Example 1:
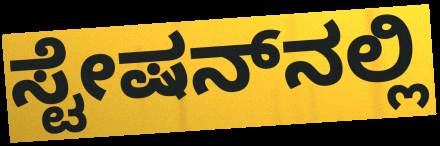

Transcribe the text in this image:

ಸ್ಟೇಷನ್‌ನಲ್ಲಿ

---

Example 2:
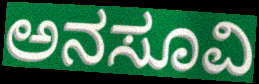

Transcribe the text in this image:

ಅನಸೂವಿ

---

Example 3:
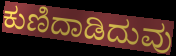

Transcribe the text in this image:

ಕುಣಿದಾಡಿದುವು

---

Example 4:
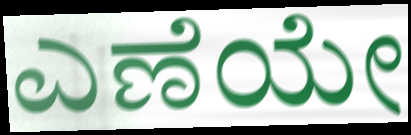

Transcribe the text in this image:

ಎಣೆಯೇ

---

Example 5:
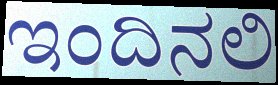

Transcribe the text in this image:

ಇಂದಿನಲಿ